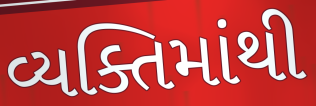
વ્યક્તિમાંથી